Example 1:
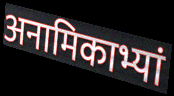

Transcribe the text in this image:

अनामिकाभ्यां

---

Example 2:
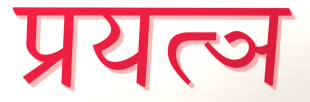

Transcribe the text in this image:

प्रयत्ञ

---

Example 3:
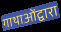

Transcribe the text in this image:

गाथाओंद्वारा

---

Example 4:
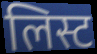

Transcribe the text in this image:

लिस्‍ट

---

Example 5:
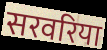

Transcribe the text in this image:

सरवरिया